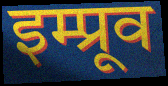
इम्प्रूव